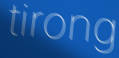
tirong